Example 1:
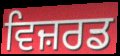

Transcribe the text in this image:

ਵਿਜ਼ਰਡ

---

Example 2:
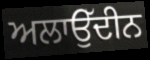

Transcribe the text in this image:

ਅਲਾਉੱਦੀਨ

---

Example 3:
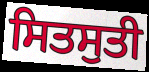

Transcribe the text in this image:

ਸਿਤਸੁਤੀ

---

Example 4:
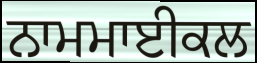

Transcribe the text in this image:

ਨਾਮਮਾਈਕਲ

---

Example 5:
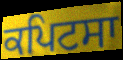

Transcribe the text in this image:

ਕਪਿਟਸਾ